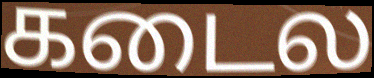
கடைல